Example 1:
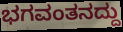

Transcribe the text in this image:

ಭಗವಂತನದ್ದು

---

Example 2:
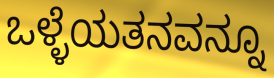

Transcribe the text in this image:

ಒಳ್ಳೆಯತನವನ್ನೂ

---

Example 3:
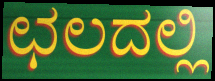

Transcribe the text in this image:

ಛಲದಲ್ಲಿ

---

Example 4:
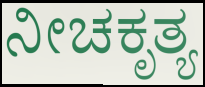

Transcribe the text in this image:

ನೀಚಕೃತ್ಯ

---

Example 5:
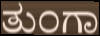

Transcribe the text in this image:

ತುಂಗಾ